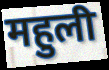
महुली